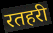
रतहरी